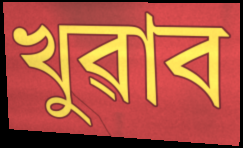
খুৱাব